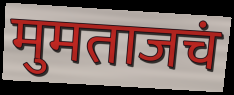
मुमताजचं